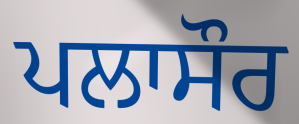
ਪਲਾਸੌਰ